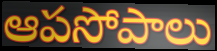
ఆపసోపాలు